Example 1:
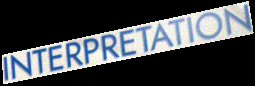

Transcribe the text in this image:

INTERPRETATION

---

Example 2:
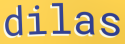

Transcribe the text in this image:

dilas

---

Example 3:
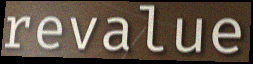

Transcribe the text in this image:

revalue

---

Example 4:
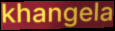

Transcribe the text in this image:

khangela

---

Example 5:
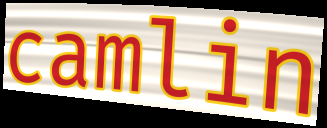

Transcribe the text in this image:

camlin